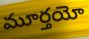
మూర్తయో